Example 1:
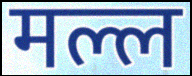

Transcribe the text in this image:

मल्ल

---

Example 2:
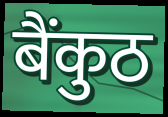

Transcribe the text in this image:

बैंकुठ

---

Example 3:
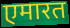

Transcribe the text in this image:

एमारत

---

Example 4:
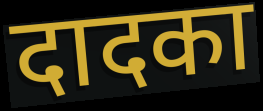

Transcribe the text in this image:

दादका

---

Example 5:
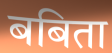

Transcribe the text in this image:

बबिता